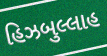
હિઝબુલ્લાહ